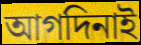
আগদিনাই